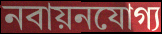
নবায়নযোগ্য